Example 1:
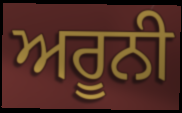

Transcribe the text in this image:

ਅਰੂਨੀ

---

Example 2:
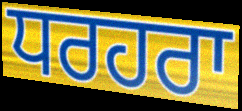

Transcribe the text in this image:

ਧਰਹਰਾ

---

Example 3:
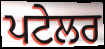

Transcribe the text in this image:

ਪਟੇਲਰ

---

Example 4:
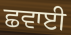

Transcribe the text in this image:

ਛਵਾਈ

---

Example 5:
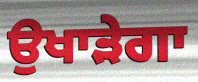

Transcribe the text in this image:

ਉਖਾੜੇਗਾ